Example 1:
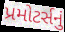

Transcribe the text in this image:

પ્રમોટર્સનું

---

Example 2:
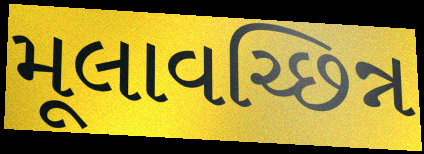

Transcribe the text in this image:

મૂલાવચ્છિન્ન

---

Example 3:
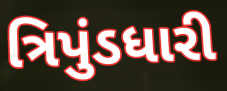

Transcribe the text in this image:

ત્રિપુંડધારી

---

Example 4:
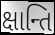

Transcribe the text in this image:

ક્ષાન્તિ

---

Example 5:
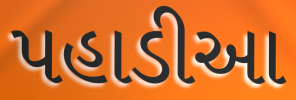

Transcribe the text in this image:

પહાડીઆ